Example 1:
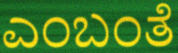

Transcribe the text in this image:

ಎಂಬಂತೆ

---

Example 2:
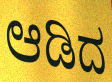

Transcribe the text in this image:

ಆಡಿದ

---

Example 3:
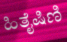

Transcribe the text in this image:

ಹಿತೈಷಿಣಿ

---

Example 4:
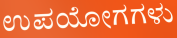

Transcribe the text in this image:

ಉಪಯೋಗಗಳು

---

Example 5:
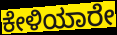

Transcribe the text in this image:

ಕೇಳಿಯಾರೇ